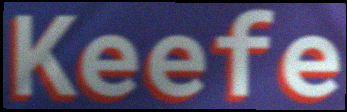
Keefe